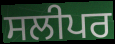
ਸਲੀਪਰ